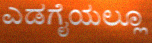
ಎಡಗೈಯಲ್ಲೂ